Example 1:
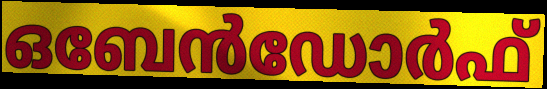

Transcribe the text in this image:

ഒബേൻഡോർഫ്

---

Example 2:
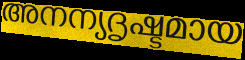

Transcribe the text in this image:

അനന്യദൃഷ്ടമായ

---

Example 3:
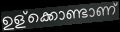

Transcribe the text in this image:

ഉള്ക്കൊണ്ടാണ്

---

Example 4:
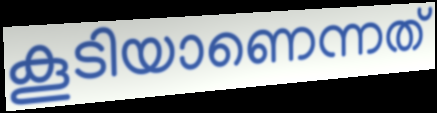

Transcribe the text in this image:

കൂടിയാണെന്നത്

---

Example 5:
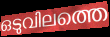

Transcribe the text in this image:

ഒടുവിലത്തെ